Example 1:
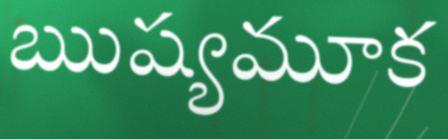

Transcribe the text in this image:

ఋష్యమూక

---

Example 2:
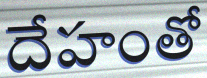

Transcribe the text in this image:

దేహంతో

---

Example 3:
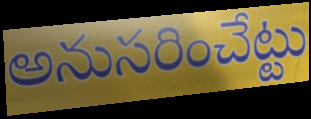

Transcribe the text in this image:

అనుసరించేట్టు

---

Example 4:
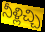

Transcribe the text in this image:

నీళ్లిచ్చి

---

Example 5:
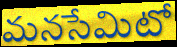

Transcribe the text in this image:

మనసేమిటో